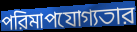
পরিমাপযোগ্যতার